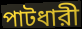
পাটধারী